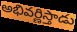
అభివర్ణిస్తాడు